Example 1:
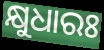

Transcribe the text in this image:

କ୍ଷୁଧାରଃ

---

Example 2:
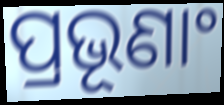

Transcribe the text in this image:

ପ୍ରଭୂଣାଂ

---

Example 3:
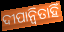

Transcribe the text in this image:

ଦୀପାନ୍ୱିତାହିଁ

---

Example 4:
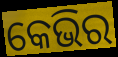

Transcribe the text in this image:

କେଭିର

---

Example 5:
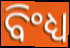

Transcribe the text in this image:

ବିଂଧ୍ୟ